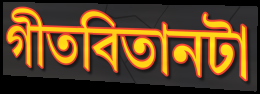
গীতবিতানটা